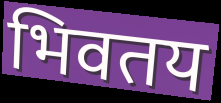
भिवतय